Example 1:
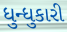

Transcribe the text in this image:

ધુન્ધુકારી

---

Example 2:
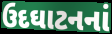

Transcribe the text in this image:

ઉદઘાટનનાં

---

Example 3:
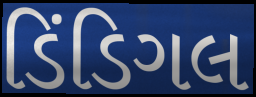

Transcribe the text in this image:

ડિંડિગલ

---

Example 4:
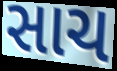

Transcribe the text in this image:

સાચ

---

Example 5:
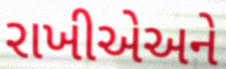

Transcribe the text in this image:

રાખીએઅને